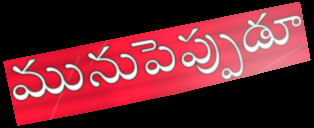
మునుపెప్పుడూ